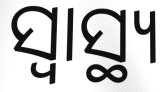
ସ୍ୱାସ୍ଥ୍ୟ